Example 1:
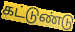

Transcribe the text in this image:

கட்டுண்டு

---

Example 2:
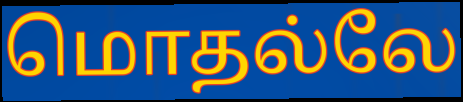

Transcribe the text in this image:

மொதல்லே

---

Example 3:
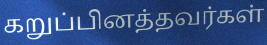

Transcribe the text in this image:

கறுப்பினத்தவர்கள்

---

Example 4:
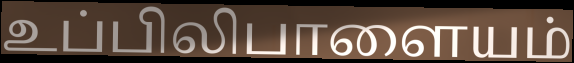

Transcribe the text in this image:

உப்பிலிபாளையம்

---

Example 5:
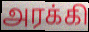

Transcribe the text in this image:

அரக்கி